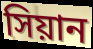
সিয়ান